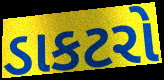
ડાકટરો